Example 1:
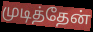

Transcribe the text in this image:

முடித்தேன்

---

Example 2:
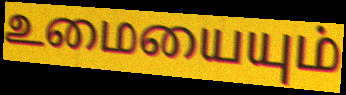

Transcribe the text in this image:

உமையையும்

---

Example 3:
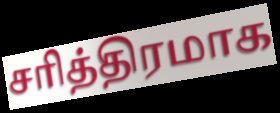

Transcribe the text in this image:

சரித்திரமாக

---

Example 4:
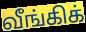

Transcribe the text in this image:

வீங்கிக்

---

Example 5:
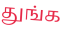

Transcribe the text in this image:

துங்க